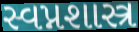
સ્વપ્નશાસ્ત્ર